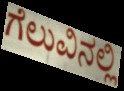
ಗೆಲುವಿನಲ್ಲಿ